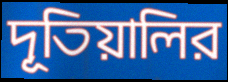
দূতিয়ালির